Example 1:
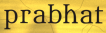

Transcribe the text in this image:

prabhat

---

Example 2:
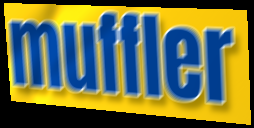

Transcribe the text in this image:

muffler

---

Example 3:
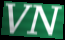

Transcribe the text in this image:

VN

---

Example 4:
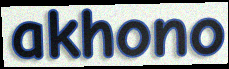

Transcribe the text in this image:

akhono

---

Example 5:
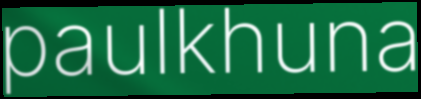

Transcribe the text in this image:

paulkhuna